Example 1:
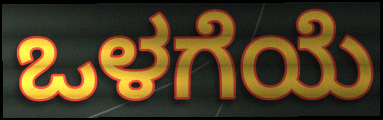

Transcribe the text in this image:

ಒಳಗೆಯೆ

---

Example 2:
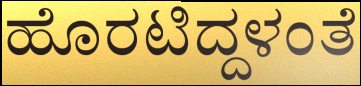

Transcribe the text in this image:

ಹೊರಟಿದ್ದಳಂತೆ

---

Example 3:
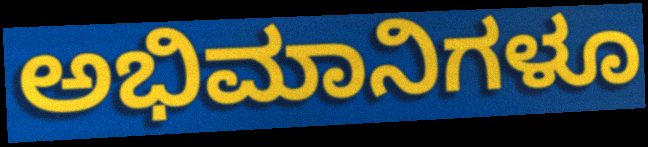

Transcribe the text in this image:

ಅಭಿಮಾನಿಗಳೂ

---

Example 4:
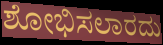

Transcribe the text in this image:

ಶೋಭಿಸಲಾರದು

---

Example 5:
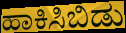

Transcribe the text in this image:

ಹಾಕಿಸಿಬಿಡು